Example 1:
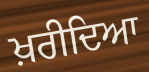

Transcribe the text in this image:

ਖ਼ਰੀਦਿਆ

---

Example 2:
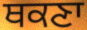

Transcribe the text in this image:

ਥਕਣਾ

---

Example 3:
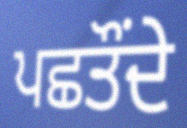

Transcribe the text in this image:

ਪਛਤੌਂਦੇ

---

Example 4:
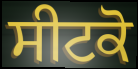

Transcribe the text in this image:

ਸੀਟਕੋ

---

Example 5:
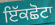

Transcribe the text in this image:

ਇੱਕਛੋਟਾ